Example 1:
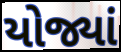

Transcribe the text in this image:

યોજ્યાં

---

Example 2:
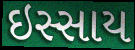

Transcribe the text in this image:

ઇસ્સાય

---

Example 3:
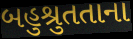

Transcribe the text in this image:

બહુશ્રુતતાના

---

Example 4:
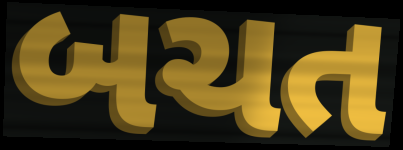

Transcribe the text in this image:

બચત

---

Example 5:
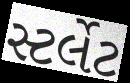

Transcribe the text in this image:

સ્ટર્લેટ